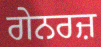
ਗੇਨਰਜ਼